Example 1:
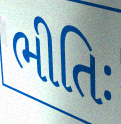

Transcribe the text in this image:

ભીતિઃ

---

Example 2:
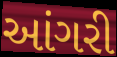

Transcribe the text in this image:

આંગરી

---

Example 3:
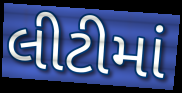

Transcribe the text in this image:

લીટીમાં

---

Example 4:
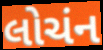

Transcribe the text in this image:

લોચંન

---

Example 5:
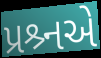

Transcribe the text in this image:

પ્રશ્ર્નએ